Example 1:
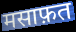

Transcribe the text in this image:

मसाफ़त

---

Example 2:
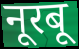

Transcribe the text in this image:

नूरबू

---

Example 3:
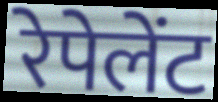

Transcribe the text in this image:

रेपेलेंट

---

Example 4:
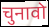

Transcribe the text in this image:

चुनावो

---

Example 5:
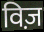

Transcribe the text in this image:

विज़